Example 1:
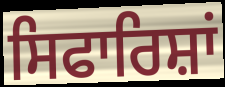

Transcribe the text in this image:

ਸਿਫਾਰਿਸ਼ਾਂ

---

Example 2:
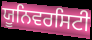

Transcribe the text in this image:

ਯੂਨਿਵਰਸਿਟੀ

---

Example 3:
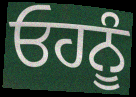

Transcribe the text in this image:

ਓਹਨੂੰ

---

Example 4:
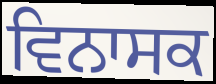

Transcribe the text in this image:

ਵਿਨਾਸਕ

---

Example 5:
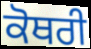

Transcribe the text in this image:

ਕੋਥਰੀ